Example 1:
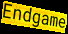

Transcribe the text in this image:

Endgame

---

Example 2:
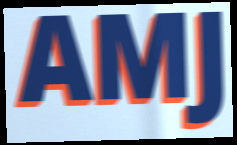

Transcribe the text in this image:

AMJ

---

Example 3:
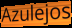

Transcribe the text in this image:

Azulejos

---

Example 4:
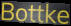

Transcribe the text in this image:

Bottke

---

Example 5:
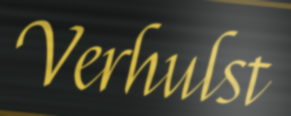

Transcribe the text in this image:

Verhulst